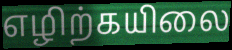
எழிற்கயிலை